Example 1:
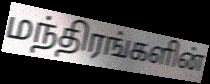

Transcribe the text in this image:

மந்திரங்களின்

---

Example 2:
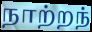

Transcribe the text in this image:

நாற்றந்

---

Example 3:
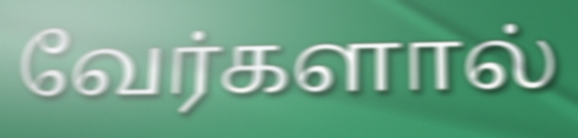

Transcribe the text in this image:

வேர்களால்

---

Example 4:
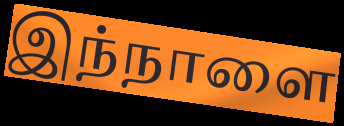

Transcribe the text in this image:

இந்நாளை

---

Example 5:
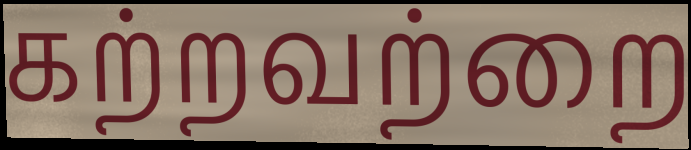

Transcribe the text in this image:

கற்றவற்றை